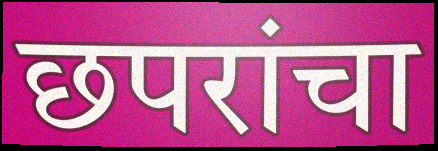
छपरांचा